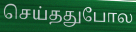
செய்ததுபோல